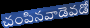
చంపినవాడెవడో